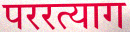
पररत्याग